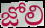
జోలి